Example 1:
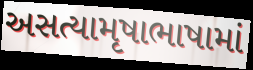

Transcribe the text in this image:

અસત્યામૃષાભાષામાં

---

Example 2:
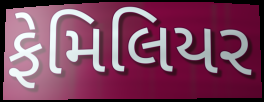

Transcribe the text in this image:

ફેમિલિયર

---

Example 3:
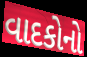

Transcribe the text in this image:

વાદકોનો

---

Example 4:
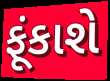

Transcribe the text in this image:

ફૂંકાશે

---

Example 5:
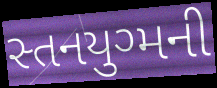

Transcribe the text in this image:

સ્તનયુગ્મની